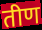
तीण